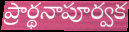
ప్రార్థనాపూర్వక